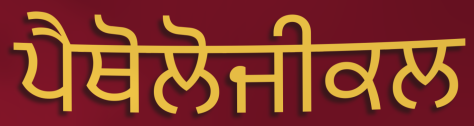
ਪੈਥੋਲੋਜੀਕਲ